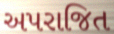
અપરાજિત